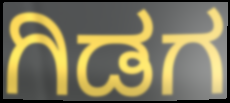
ಗಿಡಗ